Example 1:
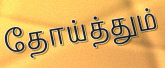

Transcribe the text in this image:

தோய்த்தும்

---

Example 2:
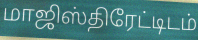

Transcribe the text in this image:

மாஜிஸ்திரேட்டிடம்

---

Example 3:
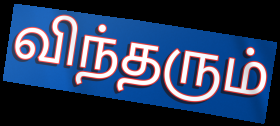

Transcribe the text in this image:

விந்தரும்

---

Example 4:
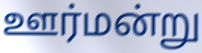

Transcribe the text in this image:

ஊர்மன்று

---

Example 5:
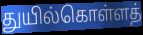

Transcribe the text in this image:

துயில்கொள்ளத்